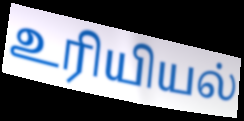
உரியியல்